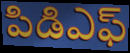
పిడిఎఫ్